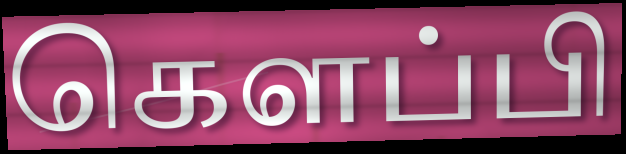
கெளப்பி